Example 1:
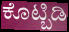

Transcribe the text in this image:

ಕೊಟ್ಬಿಡಿ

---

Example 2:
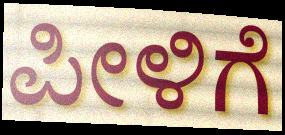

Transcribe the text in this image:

ಪೀಳಿಗೆ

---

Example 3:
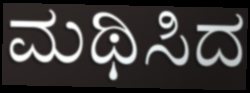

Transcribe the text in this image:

ಮಥಿಸಿದ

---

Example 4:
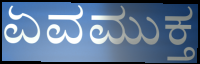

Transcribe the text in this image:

ಏವಮುಕ್ತ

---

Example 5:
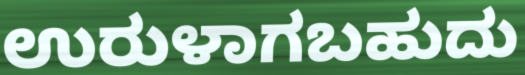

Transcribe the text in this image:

ಉರುಳಾಗಬಹುದು